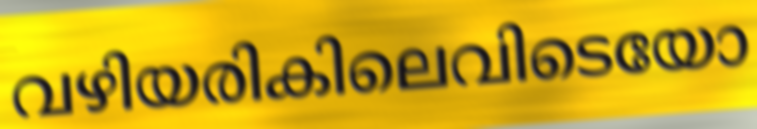
വഴിയരികിലെവിടെയോ